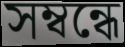
সম্বন্ধে